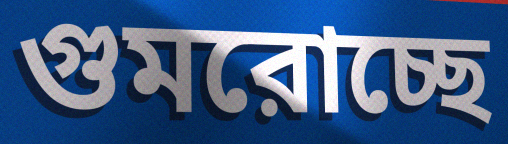
গুমরোচ্ছে